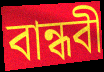
বান্ধবী